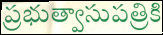
ప్రభుత్వాసుపత్రికి